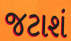
જટાશં